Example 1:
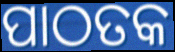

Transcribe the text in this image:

ପାଠତକ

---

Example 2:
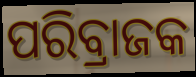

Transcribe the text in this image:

ପରିବ୍ରାଜକ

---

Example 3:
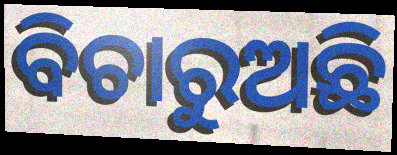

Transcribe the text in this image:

ବିଚାରୁଅଛି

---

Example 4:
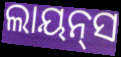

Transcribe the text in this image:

ଲାୟନ୍‌ସ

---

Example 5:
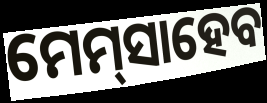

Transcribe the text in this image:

ମେମ୍‌ସାହେବ